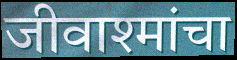
जीवाश्मांचा